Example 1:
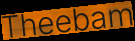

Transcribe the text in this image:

Theebam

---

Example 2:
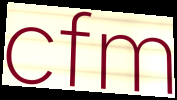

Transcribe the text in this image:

cfm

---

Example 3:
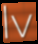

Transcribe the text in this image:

lv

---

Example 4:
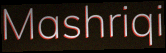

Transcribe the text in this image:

Mashriqi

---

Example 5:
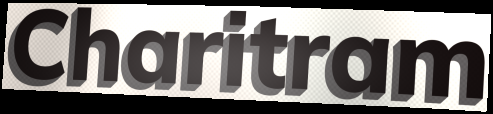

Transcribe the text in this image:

Charitram